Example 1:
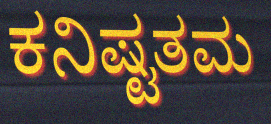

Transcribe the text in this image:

ಕನಿಷ್ಟತಮ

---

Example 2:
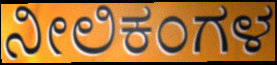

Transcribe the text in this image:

ನೀಲಿಕಂಗಳ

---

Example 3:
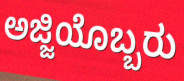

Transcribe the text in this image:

ಅಜ್ಜಿಯೊಬ್ಬರು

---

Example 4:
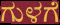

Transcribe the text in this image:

ಗುಳಗೆ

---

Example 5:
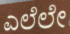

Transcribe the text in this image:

ಎಲೆಲೇ